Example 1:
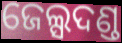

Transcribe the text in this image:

ଜେଲ୍ସଦଣ୍ଡ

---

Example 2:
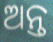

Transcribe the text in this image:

ଅନ୍ତ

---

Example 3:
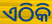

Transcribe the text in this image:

ଏଠିକି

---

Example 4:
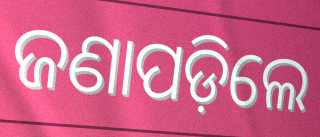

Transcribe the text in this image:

ଜଣାପଡ଼ିଲେ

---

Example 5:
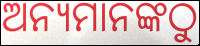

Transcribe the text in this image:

ଅନ୍ୟମାନଙ୍କଠୁ